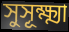
সুসূক্ষ্মা